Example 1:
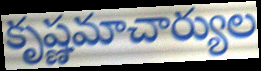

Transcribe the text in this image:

కృష్ణమాచార్యుల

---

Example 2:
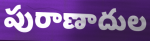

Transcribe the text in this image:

పురాణాదుల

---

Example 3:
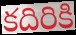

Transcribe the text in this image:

కదిరికి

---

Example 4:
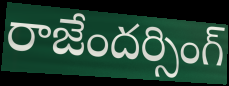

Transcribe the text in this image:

రాజేందర్సింగ్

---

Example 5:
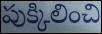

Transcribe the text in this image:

పుక్కిలించి